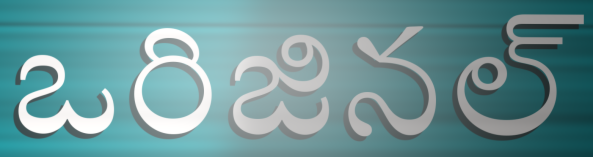
ఒరిజినల్